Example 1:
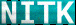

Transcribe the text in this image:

NITK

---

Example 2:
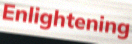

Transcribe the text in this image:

Enlightening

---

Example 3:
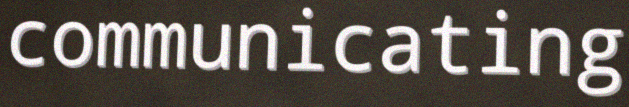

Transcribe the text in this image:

communicating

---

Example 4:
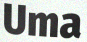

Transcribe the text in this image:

Uma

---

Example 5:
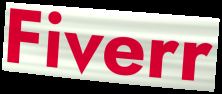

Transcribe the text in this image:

Fiverr